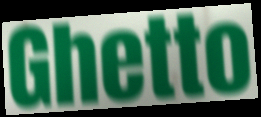
Ghetto